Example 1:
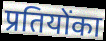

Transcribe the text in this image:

प्रतियोंका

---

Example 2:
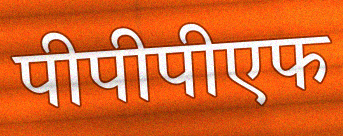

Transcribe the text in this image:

पीपीपीएफ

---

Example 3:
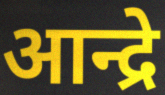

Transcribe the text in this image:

आन्द्रे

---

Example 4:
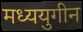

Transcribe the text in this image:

मध्ययुगीन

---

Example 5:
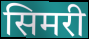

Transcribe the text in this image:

सिमरी